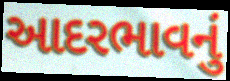
આદરભાવનું